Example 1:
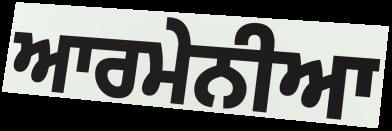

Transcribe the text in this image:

ਆਰਮੇਨੀਆ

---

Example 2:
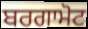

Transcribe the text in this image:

ਬਰਗਾਮੋਟ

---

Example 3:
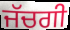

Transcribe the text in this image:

ਜੱਚਗੀ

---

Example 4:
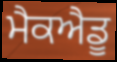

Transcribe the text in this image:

ਮੈਕਐਡੂ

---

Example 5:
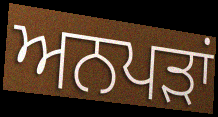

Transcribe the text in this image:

ਅਨਪੜਾਂ